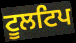
ਟੂਲਟਿਪ